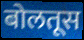
बोलतूस